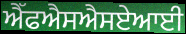
ਐੱਫਐਸਐਸਏਆਈ